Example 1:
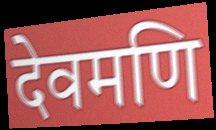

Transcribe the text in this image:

देवमणि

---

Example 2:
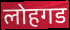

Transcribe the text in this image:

लोहगड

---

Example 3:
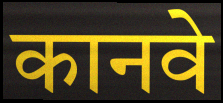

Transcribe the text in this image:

कानवे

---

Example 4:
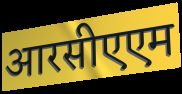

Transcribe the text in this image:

आरसीएएम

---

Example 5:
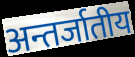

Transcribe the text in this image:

अन्तर्जातीय